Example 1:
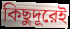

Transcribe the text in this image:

কিছুদূরেই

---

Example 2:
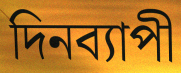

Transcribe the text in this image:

দিনব্যাপী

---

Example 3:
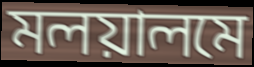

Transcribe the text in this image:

মলয়ালমে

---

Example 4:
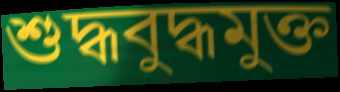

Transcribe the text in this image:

শুদ্ধবুদ্ধমুক্ত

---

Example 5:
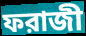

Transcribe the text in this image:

ফরাজী